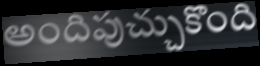
అందిపుచ్చుకొంది